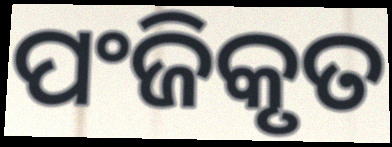
ପଂଜିକୃତ